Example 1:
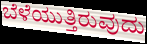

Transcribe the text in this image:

ಬೆಳೆಯುತ್ತಿರುವುದು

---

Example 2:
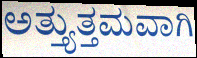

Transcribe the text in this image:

ಅತ್ತ್ಯುತ್ತಮವಾಗಿ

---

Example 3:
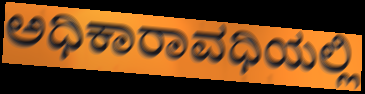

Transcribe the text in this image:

ಅಧಿಕಾರಾವಧಿಯಲ್ಲಿ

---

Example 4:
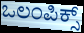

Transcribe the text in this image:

ಒಲಂಪಿಕ್ಸ್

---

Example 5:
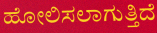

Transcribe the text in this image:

ಹೋಲಿಸಲಾಗುತ್ತಿದೆ